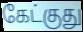
கேட்குது